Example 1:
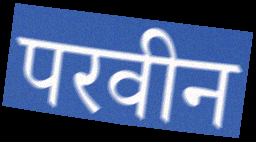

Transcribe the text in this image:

परवीन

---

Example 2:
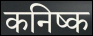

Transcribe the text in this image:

कनिष्क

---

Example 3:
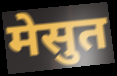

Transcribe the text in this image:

मेसुत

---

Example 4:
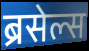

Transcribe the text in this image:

ब्रसेल्स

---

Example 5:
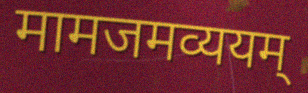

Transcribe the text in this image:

मामजमव्ययम्